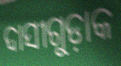
ଦାସୀଗୁଡ଼ାକ